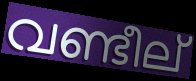
വണ്ടീല്